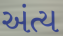
અંત્ય